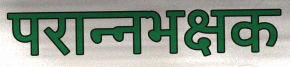
परान्नभक्षक